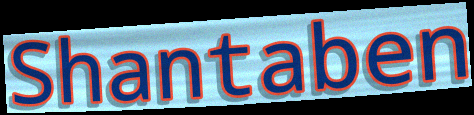
Shantaben